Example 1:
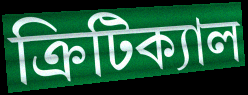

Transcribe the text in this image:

ক্রিটিক্যাল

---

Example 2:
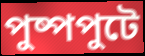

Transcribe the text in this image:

পুষ্পপুটে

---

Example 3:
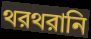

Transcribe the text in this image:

থরথরানি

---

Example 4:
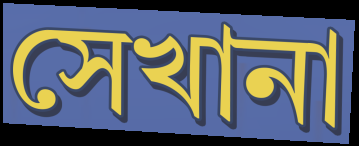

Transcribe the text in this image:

সেখানা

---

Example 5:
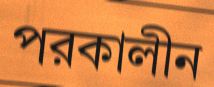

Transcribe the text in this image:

পরকালীন